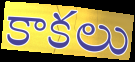
కాకలు